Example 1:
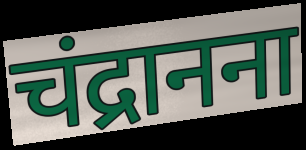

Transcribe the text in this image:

चंद्रानना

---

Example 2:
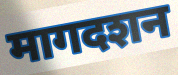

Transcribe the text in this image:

मागदशन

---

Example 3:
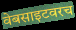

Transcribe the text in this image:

वेबसाइटवरच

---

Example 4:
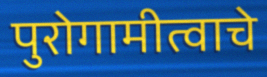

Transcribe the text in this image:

पुरोगामीत्वाचे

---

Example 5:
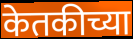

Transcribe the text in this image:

केतकीच्या